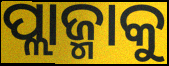
ପ୍ଲାଜ୍ମାକୁ